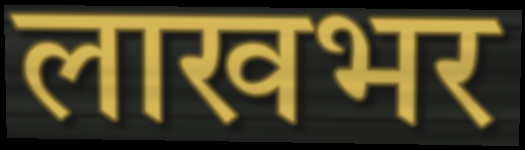
लाखभर